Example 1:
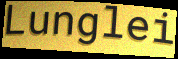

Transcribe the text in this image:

Lunglei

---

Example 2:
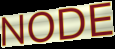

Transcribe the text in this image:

NODE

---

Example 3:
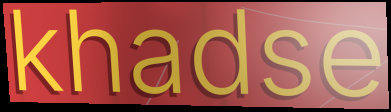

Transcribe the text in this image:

khadse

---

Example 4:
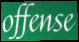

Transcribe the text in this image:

offense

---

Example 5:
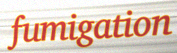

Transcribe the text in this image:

fumigation